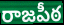
రాజపీఠ